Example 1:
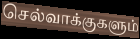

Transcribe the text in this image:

செல்வாக்குகளும்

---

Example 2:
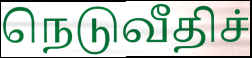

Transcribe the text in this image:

நெடுவீதிச்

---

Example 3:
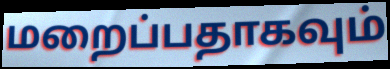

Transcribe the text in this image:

மறைப்பதாகவும்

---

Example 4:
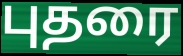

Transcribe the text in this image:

புதரை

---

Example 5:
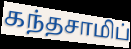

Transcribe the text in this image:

கந்தசாமிப்